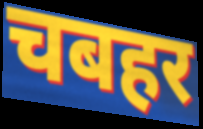
चबहर